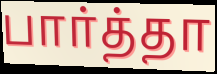
பார்த்தா